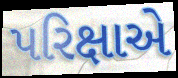
પરિક્ષાએ